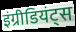
इंग्रीडियंट्स